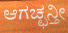
ಆಗಚ್ಛನ್ತೀ